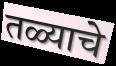
तळ्याचे